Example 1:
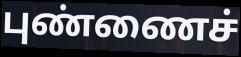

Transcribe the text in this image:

புண்ணைச்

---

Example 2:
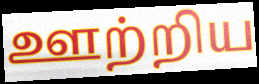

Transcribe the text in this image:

ஊற்றிய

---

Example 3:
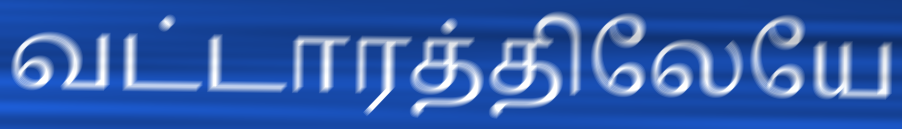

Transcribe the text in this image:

வட்டாரத்திலேயே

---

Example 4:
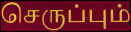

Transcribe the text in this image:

செருப்பும்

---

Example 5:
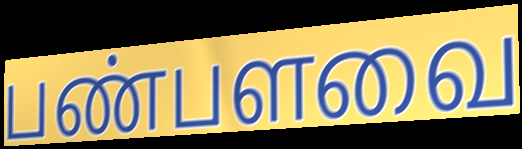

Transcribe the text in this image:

பண்பளவை